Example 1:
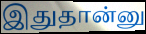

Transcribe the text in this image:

இதுதான்னு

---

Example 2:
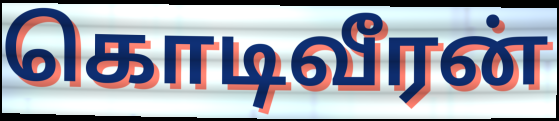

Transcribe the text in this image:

கொடிவீரன்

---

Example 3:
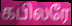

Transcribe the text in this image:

கபிலரே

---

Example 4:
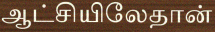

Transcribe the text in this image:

ஆட்சியிலேதான்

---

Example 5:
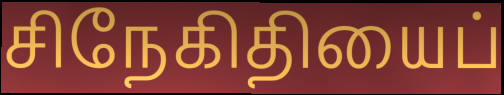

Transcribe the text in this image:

சிநேகிதியைப்